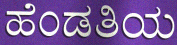
ಹೆಂಡತಿಯ